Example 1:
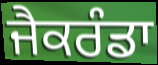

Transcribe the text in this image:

ਜੈਕਰੰਡਾ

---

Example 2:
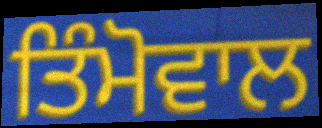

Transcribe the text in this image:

ਤਿੰਮੋਵਾਲ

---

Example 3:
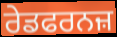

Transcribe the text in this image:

ਰੇਡਫਰਨਜ਼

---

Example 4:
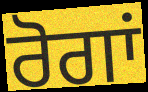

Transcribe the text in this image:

ਰੋਗਾਂ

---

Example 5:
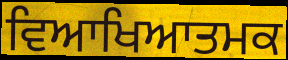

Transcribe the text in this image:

ਵਿਆਖਿਆਤਮਕ